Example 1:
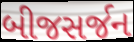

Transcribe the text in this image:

બીજસર્જન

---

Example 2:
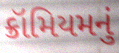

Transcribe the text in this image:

ક્રૉમિયમનું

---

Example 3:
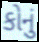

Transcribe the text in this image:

કોનું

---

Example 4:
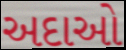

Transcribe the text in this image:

અદાઓ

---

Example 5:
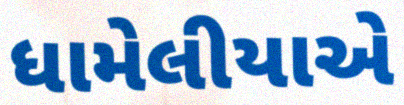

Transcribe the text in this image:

ધામેલીયાએ